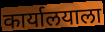
कार्यालयाला